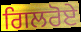
ਗਿਲਰੋਏ